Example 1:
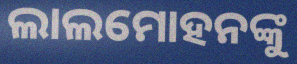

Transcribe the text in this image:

ଲାଲମୋହନଙ୍କୁ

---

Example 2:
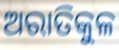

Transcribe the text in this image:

ଅରାତିକୁଳ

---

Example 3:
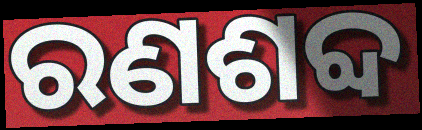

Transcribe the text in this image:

ରଣଶବ୍ଦ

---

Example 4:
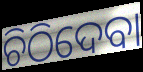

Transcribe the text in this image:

ଚିଠିଦେବା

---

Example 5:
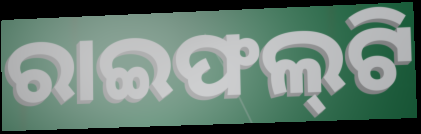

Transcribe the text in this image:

ରାଇଫଲ୍‌ଟି